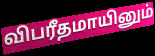
விபரீதமாயினும்